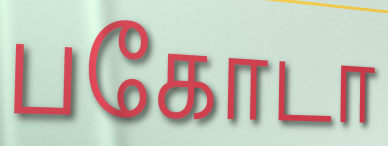
பகோடா